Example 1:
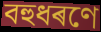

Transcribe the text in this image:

বহুধৰণে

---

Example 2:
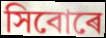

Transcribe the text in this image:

সিবোৰে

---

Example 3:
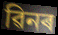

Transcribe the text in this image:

ৱিনৰ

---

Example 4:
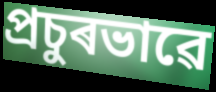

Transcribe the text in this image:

প্ৰচুৰভাৱে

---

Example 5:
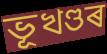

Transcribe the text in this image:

ভূখণ্ডৰ